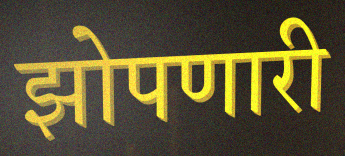
झोपणारी